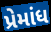
પ્રેમાંધ